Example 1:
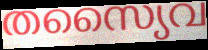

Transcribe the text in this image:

തസ്യൈവ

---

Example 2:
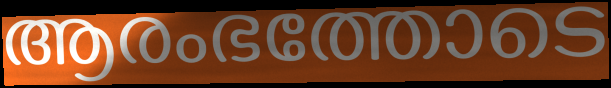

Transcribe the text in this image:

ആരംഭത്തോടെ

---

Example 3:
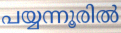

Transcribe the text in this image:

പയ്യന്നൂരിൽ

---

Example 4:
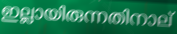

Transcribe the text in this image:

ഇല്ലായിരുന്നതിനാല്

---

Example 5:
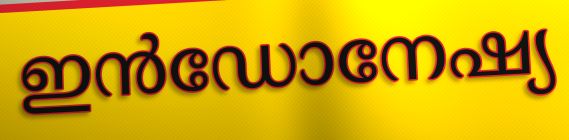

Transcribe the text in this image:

ഇൻഡോനേഷ്യ